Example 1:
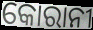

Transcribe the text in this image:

କୋରାନୀ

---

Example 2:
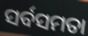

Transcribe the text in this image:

ସର୍ବସମତା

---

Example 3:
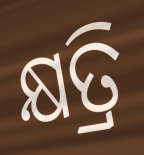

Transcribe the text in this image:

କ୍ଷତ୍ରି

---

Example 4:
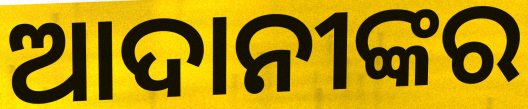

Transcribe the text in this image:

ଆଦାନୀଙ୍କର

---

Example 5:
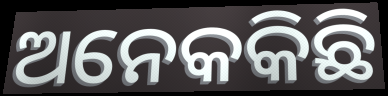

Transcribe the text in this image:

ଅନେକକିଛି